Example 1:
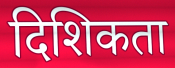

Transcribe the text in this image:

दिशिकता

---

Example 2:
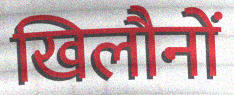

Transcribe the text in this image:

खिलौनों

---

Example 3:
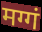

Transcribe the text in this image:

मग्गं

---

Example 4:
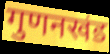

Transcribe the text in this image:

गुणनखंड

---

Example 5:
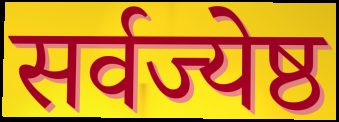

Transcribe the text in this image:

सर्वज्येष्ठ